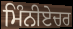
ਮਿੰਨੀਏਚਰ